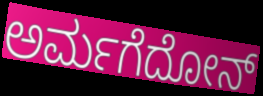
ಅರ್ಮಗೆದೋನ್